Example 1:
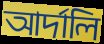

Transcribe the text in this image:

আর্দালি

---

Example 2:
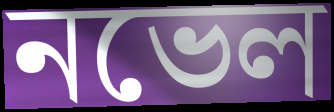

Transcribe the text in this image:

নভেল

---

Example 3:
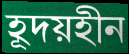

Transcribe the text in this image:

হূদয়হীন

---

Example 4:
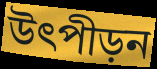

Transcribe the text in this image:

উৎপীড়ন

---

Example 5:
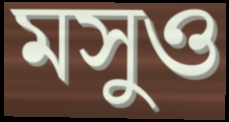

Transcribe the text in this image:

মসুও